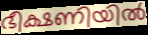
ഭീക്ഷണിയിൽ